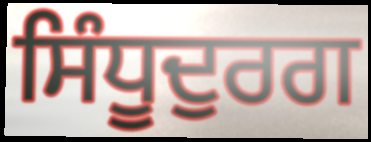
ਸਿੰਧੂਦੁਰਗ